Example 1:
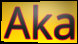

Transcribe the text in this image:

Aka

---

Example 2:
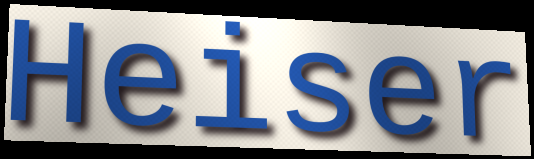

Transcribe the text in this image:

Heiser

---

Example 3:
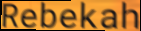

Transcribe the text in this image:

Rebekah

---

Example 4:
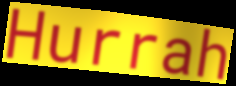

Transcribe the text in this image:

Hurrah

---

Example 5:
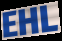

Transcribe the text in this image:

EHL